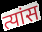
त्यांस